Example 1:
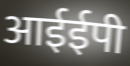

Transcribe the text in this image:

आईईपी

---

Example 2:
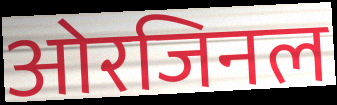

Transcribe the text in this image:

ओरजिनल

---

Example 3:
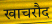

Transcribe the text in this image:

खाचरौद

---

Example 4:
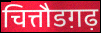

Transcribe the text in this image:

चित्तौडग़ढ़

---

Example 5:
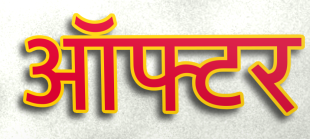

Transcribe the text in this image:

ऑफ्टर